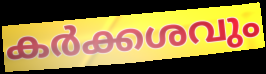
കർക്കശവും